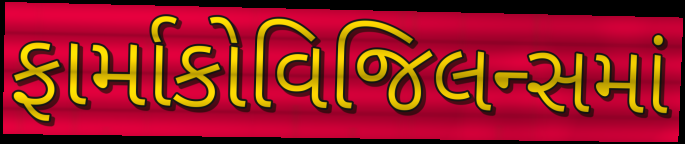
ફાર્માકોવિજિલન્સમાં